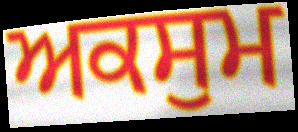
ਅਕਸੁਮ